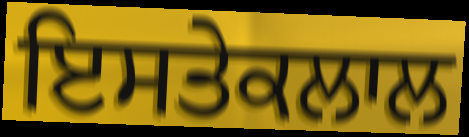
ਇਸਤੇਕਲਾਲ